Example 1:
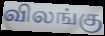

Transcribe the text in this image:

விலங்கு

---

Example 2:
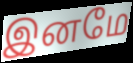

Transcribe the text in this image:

இனமே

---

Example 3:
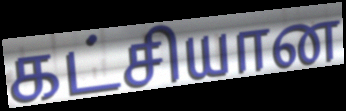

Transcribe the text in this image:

கட்சியான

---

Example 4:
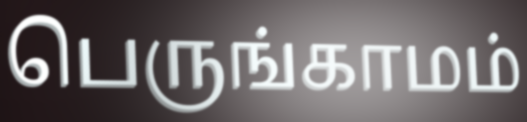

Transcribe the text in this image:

பெருங்காமம்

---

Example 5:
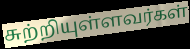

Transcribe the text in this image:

சுற்றியுள்ளவர்கள்